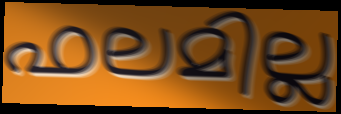
ഫലമില്ല